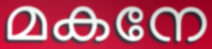
മകനേ